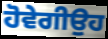
ਹੋਵੇਗੀਉਹ